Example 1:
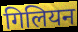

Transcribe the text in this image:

गिलियन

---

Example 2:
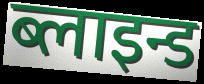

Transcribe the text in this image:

ब्लाइन्ड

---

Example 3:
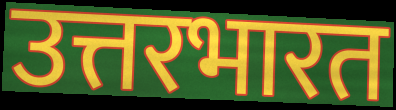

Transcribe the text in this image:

उत्तरभारत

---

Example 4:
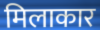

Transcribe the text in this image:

मिलाकार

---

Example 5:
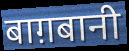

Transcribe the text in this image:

बाग़बानी